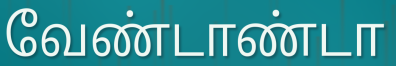
வேண்டாண்டா